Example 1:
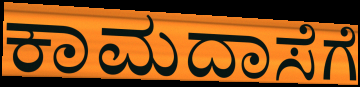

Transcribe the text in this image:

ಕಾಮದಾಸೆಗೆ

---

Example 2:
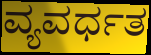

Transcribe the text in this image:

ವ್ಯವರ್ಧತ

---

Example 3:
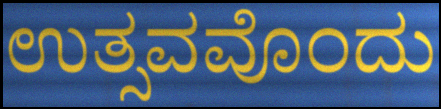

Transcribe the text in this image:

ಉತ್ಸವವೊಂದು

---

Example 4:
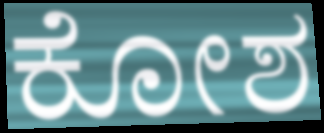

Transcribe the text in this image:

ಕೋಶ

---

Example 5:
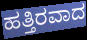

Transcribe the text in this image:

ಹತ್ತಿರವಾದ